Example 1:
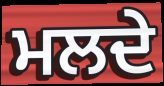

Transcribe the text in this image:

ਮਲਦੇ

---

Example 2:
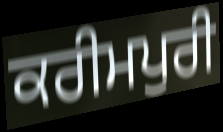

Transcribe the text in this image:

ਕਰੀਮਪੁਰੀ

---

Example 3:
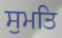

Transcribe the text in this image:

ਸੁਮਤਿ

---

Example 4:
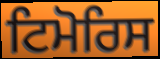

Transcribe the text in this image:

ਟਿਮੋਰਿਸ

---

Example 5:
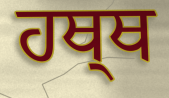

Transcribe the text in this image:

ਹਥ੍ਥ